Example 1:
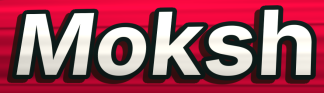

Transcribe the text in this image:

Moksh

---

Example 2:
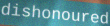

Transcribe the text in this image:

dishonoured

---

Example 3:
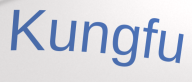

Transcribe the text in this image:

Kungfu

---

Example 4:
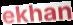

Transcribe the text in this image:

ekhan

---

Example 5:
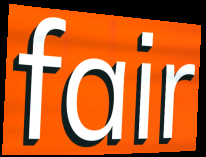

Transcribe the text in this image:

fair